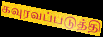
கவுரவப்படுத்தி